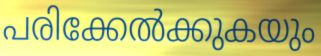
പരിക്കേൽക്കുകയും